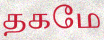
தகமே